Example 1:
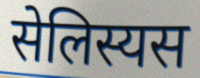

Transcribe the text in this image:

सेलिस्यस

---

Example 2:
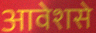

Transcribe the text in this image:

आवेशसे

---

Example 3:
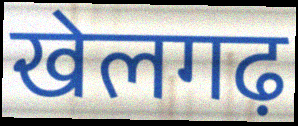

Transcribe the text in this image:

खेलगढ़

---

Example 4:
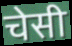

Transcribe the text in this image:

चेसी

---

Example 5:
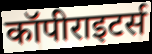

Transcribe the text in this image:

कॉपीराइटर्स